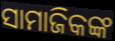
ସାମାଜିକଙ୍କ